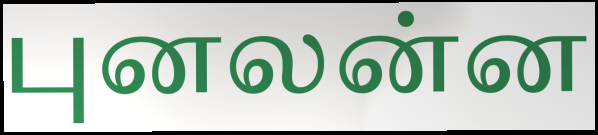
புனலன்ன